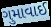
ગુમાવાઈ